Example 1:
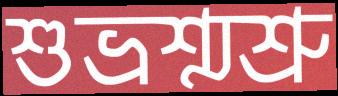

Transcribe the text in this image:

শুভ্রশ্মশ্রু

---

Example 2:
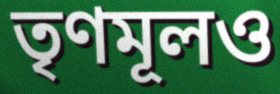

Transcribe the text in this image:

তৃণমূলও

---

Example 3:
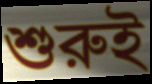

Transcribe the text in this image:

শুরুই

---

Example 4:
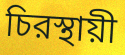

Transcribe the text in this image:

চিরস্থায়ী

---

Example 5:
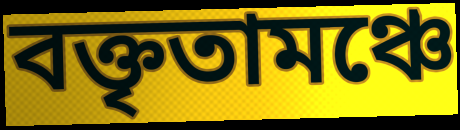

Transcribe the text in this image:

বক্তৃতামঞ্চে